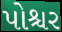
પોશ્ચર